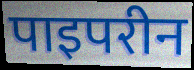
पाइपरीन